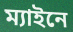
ম্যাইনে